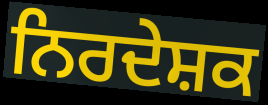
ਨਿਰਦੇਸ਼ਕ